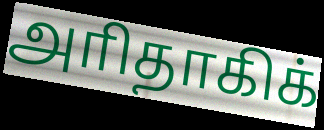
அரிதாகிக்